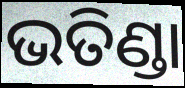
ଭତିଣ୍ଡା